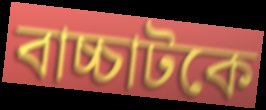
বাচ্চাটকে